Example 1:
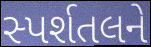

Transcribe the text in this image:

સ્પર્શતલને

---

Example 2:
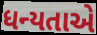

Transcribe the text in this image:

ધન્યતાએ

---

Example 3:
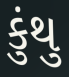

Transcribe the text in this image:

કુંથુ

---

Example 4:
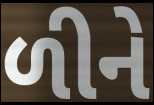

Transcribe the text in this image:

ળીને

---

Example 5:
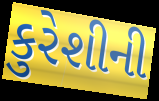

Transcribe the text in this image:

કુરેશીની